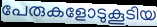
പേരുകളോടുകൂടിയ